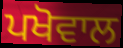
ਪਖੋਵਾਲ